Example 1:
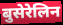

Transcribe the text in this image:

बुसेरेलिन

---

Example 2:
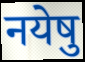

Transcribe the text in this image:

नयेषु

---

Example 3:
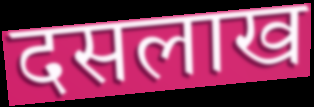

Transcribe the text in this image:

दसलाख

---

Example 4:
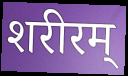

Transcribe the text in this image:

शरीरम्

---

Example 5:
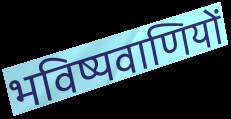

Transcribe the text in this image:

भविष्यवाणियों